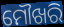
ମୌଖରି